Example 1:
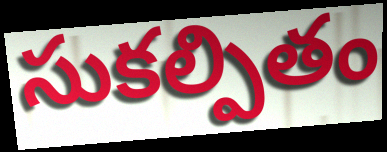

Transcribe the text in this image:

సుకల్పితం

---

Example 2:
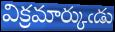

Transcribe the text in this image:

విక్రమార్కుఁడు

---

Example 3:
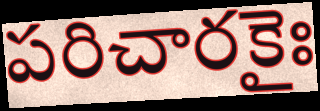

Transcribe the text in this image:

పరిచారకైః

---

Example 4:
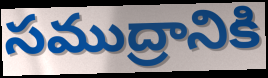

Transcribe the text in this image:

సముద్రానికి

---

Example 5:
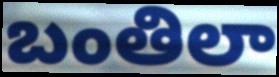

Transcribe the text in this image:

బంతిలా